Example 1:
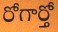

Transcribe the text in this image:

రోగార్తో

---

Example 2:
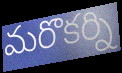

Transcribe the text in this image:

మరొకర్ని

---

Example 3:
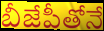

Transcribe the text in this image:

బీజేపీతోనే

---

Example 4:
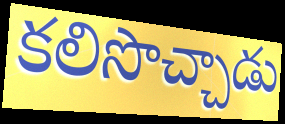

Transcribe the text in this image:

కలిసొచ్చాడు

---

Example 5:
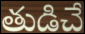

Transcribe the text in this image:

తుడిచే